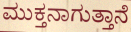
ಮುಕ್ತನಾಗುತ್ತಾನೆ